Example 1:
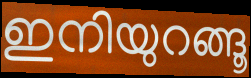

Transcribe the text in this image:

ഇനിയുറങ്ങൂ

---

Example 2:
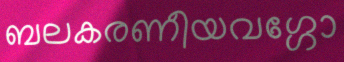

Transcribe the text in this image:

ബലകരണീയവഗ്ഗോ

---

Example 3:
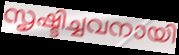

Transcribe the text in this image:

സൃഷ്ടിച്ചവനായി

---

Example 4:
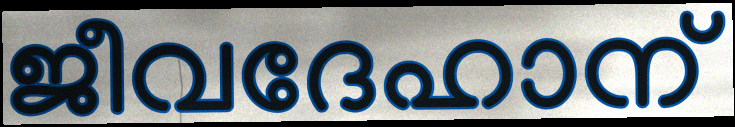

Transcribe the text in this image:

ജീവദേഹാന്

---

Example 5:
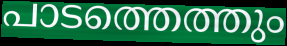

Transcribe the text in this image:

പാടത്തെത്തും